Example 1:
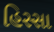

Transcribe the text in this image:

હિસ્સા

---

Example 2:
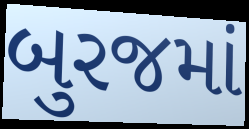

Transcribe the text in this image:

બુરજમાં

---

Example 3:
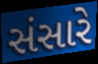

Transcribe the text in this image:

સંસારે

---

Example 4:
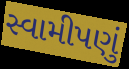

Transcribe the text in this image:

સ્વામીપણું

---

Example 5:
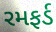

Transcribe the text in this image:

રમફર્ડ